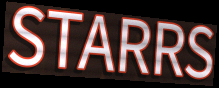
STARRS